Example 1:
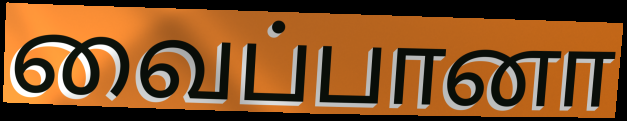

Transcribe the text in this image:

வைப்பானா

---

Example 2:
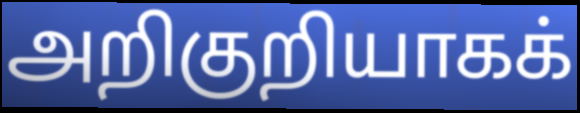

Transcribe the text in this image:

அறிகுறியாகக்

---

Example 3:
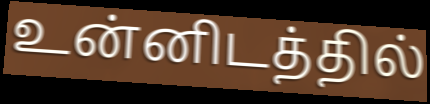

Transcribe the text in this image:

உன்னிடத்தில்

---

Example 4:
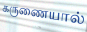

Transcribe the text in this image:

கருணையால்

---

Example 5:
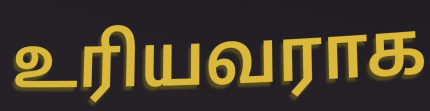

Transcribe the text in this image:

உரியவராக